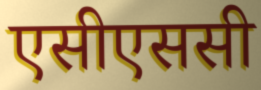
एसीएससी